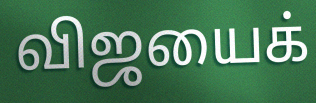
விஜயைக்